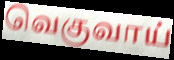
வெகுவாய்